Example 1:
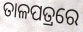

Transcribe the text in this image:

ତାଳପତ୍ରରେ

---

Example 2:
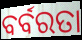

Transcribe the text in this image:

ବର୍ବରତା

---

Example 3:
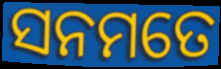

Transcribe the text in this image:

ସନମତେ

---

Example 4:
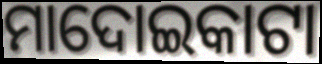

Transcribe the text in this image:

ମାଦୋଇକାଟା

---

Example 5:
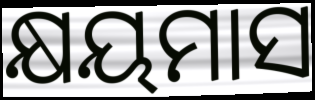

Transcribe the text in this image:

କ୍ଷୟମାସ